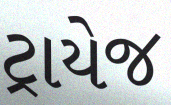
ટ્રાયેજ